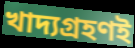
খাদ্যগ্রহণই